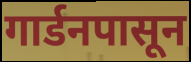
गार्डनपासून